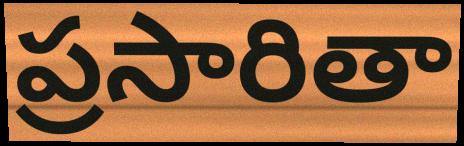
ప్రసారితా